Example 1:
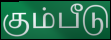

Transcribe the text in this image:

கும்பீடு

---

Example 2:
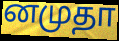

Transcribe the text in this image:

னமுதா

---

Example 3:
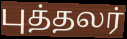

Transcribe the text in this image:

புத்தலர்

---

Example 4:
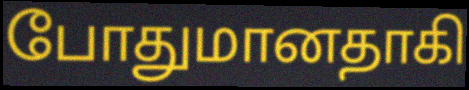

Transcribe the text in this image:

போதுமானதாகி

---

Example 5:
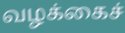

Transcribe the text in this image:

வழக்கைச்